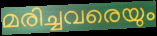
മരിച്ചവരെയും